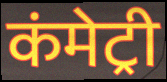
कंमेट्री